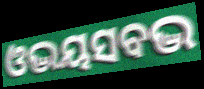
ଓଦ୍ଭୟସବଦ୍ଭ